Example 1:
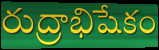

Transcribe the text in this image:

రుద్రాభిషేకం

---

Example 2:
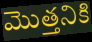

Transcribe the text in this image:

మొత్తనికి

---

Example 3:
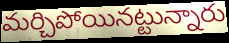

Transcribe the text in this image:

మర్చిపోయినట్టున్నారు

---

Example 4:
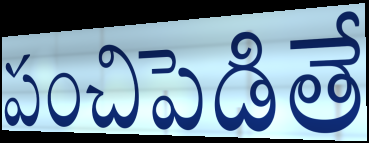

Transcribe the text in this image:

పంచిపెడితే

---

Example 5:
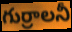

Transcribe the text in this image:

గుర్రాలనీ